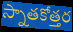
స్నాతకోత్తర